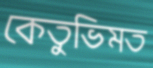
কেতুভিমত